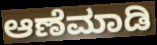
ಆಣೆಮಾಡಿ